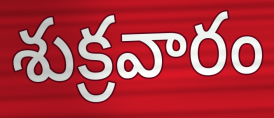
శుక్రవారం